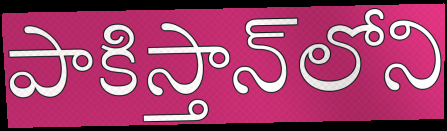
పాకిస్తాన్‌లోని